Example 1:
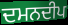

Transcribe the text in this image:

ਦਮਨਦੀਪ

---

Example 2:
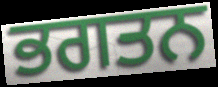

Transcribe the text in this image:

ਭਗਤਨ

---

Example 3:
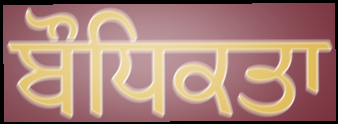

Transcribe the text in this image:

ਬੌਧਿਕਤਾ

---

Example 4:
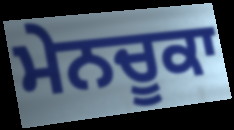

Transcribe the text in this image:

ਮੇਨਚੂਕਾ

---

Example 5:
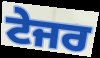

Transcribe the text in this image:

ਟੇਜਰ